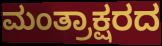
ಮಂತ್ರಾಕ್ಷರದ